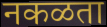
नकळता